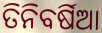
ତିନିବର୍ଷିଆ